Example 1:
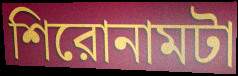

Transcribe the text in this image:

শিরোনামটা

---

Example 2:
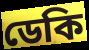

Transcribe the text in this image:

ডেকি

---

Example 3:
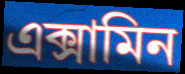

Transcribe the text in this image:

এক্সামিন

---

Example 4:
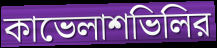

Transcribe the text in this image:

কাভেলাশভিলির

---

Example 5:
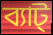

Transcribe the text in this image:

ব্যাট্